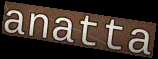
anatta